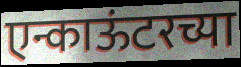
एन्काऊंटरच्या